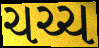
ચચ્ચ